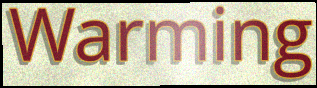
Warming